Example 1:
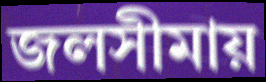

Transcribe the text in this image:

জলসীমায়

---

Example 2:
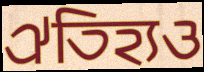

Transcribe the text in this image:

ঐতিহ্যও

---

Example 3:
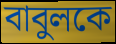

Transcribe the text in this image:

বাবুলকে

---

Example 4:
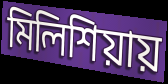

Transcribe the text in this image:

মিলিশিয়ায়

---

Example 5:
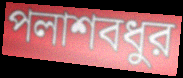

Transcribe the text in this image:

পলাশবধুর